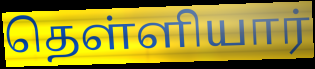
தெள்ளியார்